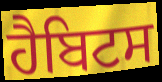
ਹੈਬਿਟਸ